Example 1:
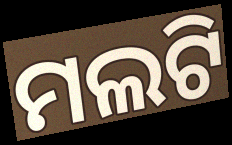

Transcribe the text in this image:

ମଲଟି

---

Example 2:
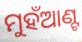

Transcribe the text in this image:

ମୁହଁଆଣ୍ଟ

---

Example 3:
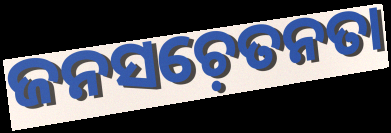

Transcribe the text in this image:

ଜନସଚ଼େତନତା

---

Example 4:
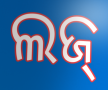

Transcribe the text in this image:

ଲଜ୍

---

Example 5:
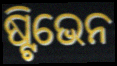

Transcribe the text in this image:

ଷ୍ଟିଭେନ